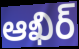
ఆఖిర్